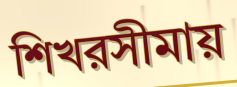
শিখরসীমায়